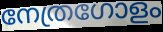
നേത്രഗോളം